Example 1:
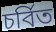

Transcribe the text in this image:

চৰ্বিত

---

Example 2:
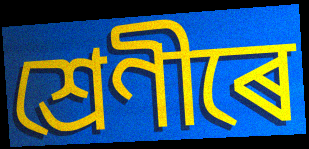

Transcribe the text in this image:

শ্ৰেণীৰে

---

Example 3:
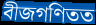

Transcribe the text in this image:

বীজগণিতত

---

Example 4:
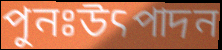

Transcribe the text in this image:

পুনঃউৎপাদন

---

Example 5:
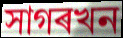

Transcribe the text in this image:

সাগৰখন